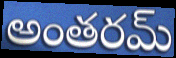
అంతరమ్